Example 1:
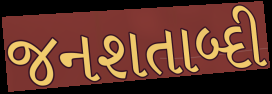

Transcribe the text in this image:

જનશતાબ્દી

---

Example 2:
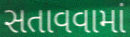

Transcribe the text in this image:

સતાવવામાં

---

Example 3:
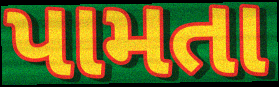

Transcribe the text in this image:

પામતા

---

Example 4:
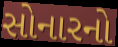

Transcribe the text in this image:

સોનારનો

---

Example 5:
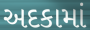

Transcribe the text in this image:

અદકામાં